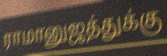
ராமானுஜத்துக்கு